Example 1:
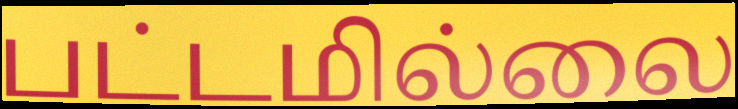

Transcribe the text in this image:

பட்டமில்லை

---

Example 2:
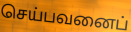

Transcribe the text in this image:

செய்பவனைப்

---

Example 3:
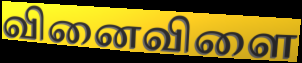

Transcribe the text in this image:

வினைவிளை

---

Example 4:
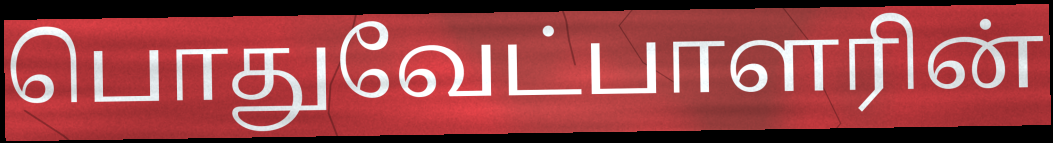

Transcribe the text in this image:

பொதுவேட்பாளரின்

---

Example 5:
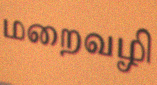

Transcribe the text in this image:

மறைவழி